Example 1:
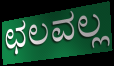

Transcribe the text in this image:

ಛಲವಲ್ಲ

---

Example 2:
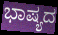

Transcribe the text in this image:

ಭಾಷ್ಯದ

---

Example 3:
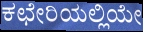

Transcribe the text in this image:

ಕಛೇರಿಯಲ್ಲಿಯೇ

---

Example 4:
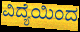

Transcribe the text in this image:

ವಿದ್ಯೆಯಿಂದ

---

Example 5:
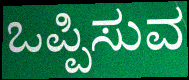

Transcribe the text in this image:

ಒಪ್ಪಿಸುವ